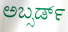
ಅಬ್ಸರ್ಡ್